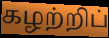
கழற்றிப்